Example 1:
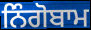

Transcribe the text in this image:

ਨਿੰਗੋਬਾਮ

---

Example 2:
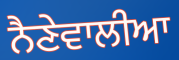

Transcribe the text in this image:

ਨੈਣੇਵਾਲੀਆ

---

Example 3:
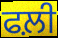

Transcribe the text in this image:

ਫਲ਼ੀ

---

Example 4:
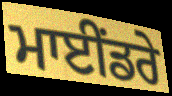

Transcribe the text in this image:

ਮਾਈਂਡਰੇ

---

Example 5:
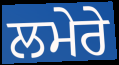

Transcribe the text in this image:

ਲਮੇਰੇ